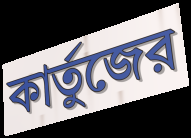
কার্তুজের